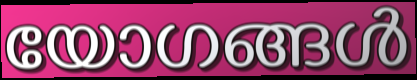
യോഗങ്ങൾ